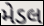
મેડલ